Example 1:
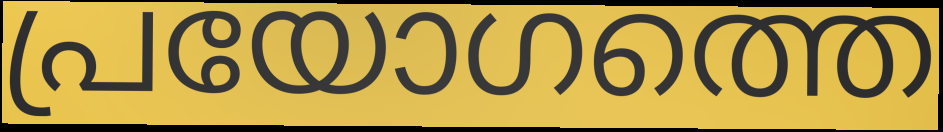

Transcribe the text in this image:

പ്രയോഗത്തെ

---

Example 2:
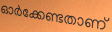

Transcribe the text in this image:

ഓർക്കേണ്ടതാണ്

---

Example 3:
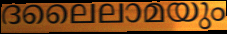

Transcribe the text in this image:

ദലൈലാമയും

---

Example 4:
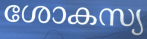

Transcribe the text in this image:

ശോകസ്യ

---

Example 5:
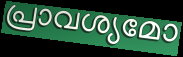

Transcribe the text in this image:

പ്രാവശ്യമോ